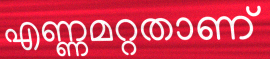
എണ്ണമറ്റതാണ്